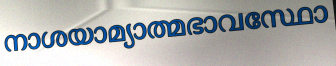
നാശയാമ്യാത്മഭാവസ്ഥോ